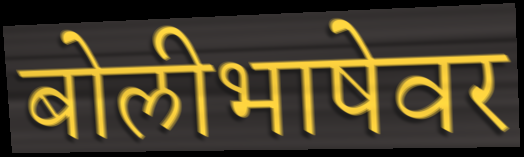
बोलीभाषेवर